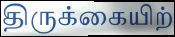
திருக்கையிற்